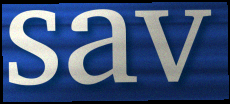
sav